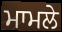
ਮਾਮਲੇ